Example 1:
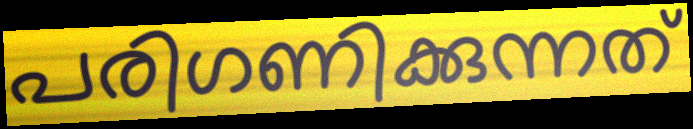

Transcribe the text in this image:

പരിഗണിക്കുന്നത്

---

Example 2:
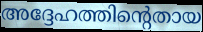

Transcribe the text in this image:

അദ്ദേഹത്തിന്റെതായ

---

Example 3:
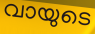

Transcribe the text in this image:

വായുടെ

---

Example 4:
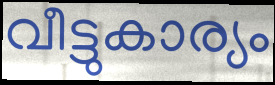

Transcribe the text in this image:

വീട്ടുകാര്യം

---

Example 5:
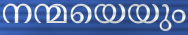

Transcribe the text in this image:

നന്മയെയും